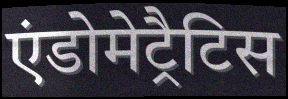
एंडोमेट्रैटिस